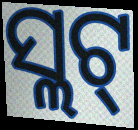
ସ୍ଲଟ୍